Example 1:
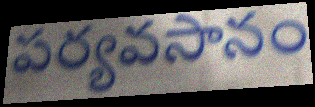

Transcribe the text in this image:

పర్యవసానం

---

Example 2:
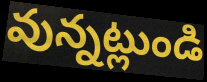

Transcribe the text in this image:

వున్నట్లుండి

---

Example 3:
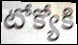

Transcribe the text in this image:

టోక్యోకి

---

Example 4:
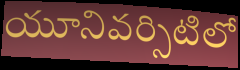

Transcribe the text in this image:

యూనివర్సిటిలో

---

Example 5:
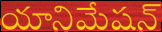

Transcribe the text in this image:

యానిమేషన్